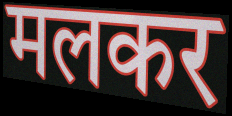
मलकर